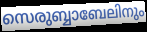
സെരുബ്ബാബേലിനും